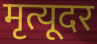
मृत्यूदर